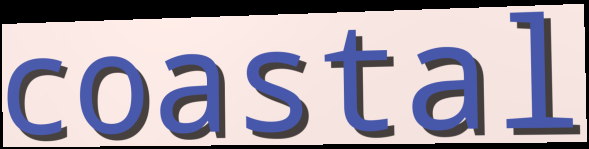
coastal